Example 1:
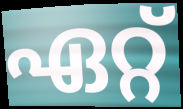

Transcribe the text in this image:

ഏറ്റ്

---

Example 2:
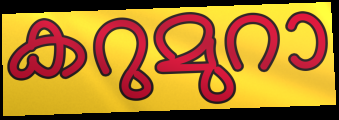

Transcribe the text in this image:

കറുമുറാ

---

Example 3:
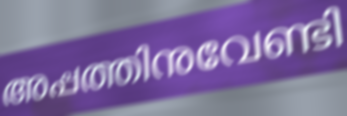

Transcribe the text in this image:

അപ്പത്തിനുവേണ്ടി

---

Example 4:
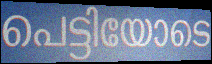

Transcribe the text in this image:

പെട്ടിയോടെ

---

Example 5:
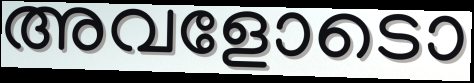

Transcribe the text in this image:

അവളോടൊ